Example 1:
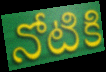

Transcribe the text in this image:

నోటికి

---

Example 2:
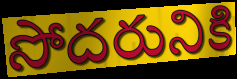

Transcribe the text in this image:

సోదరునికి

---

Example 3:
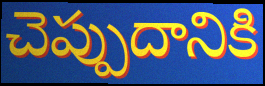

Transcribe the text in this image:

చెప్పుదానికి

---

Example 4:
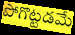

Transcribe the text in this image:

పోగొట్టడమే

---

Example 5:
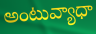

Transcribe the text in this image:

అంటువ్యాధా